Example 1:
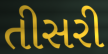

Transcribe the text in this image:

તીસરી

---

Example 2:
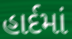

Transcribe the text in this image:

હાર્દમાં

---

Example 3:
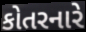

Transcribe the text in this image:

કોતરનારે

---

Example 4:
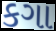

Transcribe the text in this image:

કગા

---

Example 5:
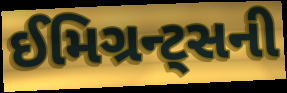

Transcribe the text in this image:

ઈમિગ્રન્ટ્સની